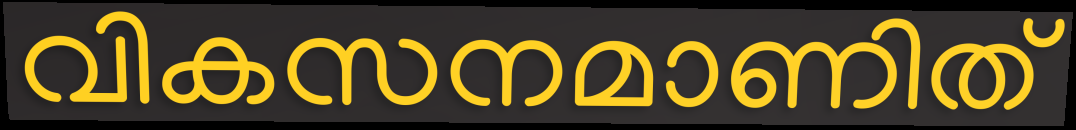
വികസനമാണിത്